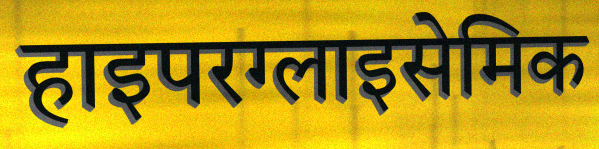
हाइपरग्लाइसेमिक